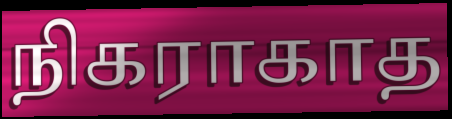
நிகராகாத